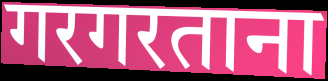
गरगरताना